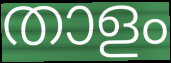
താളം